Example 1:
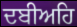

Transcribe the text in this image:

ਦਬੀਅਹਿ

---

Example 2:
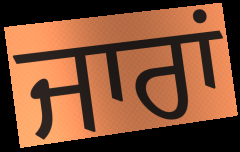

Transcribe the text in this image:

ਜਾਰਾਂ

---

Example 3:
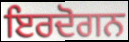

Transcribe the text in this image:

ਇਰਦੋਗਨ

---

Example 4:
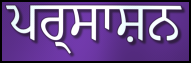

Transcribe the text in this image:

ਪਰ੍ਸਾਸ਼ਨ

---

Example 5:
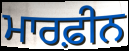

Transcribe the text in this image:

ਮਾਰਫ਼ੀਨ